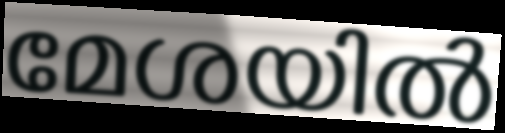
മേശയിൽ